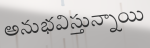
అనుభవిస్తున్నాయి